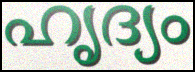
ഹൃദ്യം